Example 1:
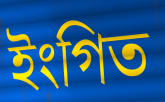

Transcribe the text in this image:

ইংগিত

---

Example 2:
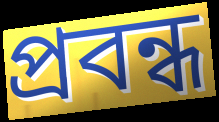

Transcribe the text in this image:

প্ৰবন্ধ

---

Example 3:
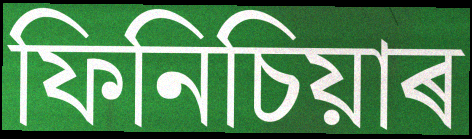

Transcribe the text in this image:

ফিনিচিয়াৰ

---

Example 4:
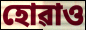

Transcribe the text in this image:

হোৱাও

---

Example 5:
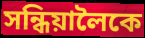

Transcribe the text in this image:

সন্ধিয়ালৈকে